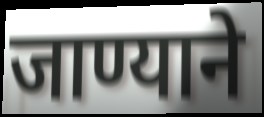
जाण्याने